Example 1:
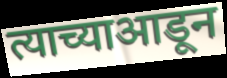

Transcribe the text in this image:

त्याच्याआडून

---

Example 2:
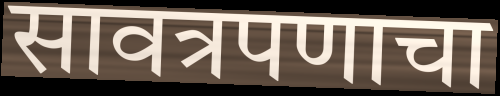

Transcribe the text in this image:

सावत्रपणाचा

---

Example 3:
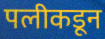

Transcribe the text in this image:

पलीकडून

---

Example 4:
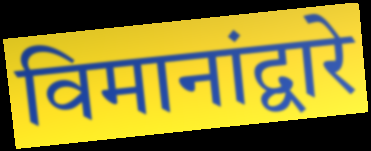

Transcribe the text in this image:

विमानांद्वारे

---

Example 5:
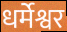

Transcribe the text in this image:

धर्मेश्वर